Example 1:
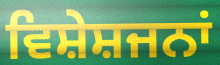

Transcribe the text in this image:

ਵਿਸ਼ੇਸ਼ਜਨਾਂ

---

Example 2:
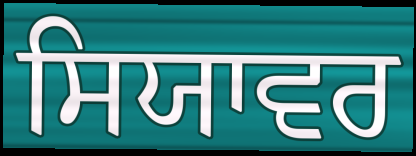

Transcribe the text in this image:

ਸਿਯਾਵਰ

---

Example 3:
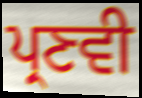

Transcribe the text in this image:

ਪ੍ਰਣਵੀ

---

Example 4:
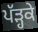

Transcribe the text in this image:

ਪੱੜ੍ਹਕੇ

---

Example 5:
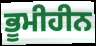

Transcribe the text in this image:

ਭੂਮੀਹੀਨ